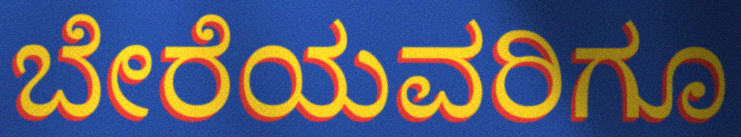
ಬೇರೆಯವರಿಗೂ